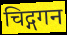
चिद्गगन